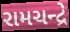
રામચન્દ્રે